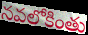
నవలోకింతు